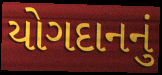
યોગદાનનું